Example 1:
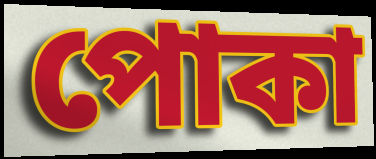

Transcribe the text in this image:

পোকা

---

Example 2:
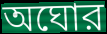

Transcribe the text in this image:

অঘোর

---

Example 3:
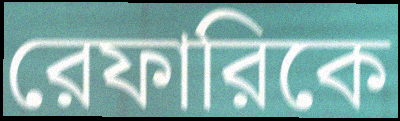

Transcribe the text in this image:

রেফারিকে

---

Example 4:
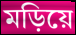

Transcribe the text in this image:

মড়িয়ে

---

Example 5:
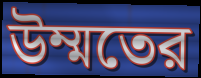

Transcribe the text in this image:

উম্মতের